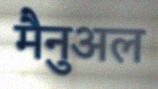
मैनुअल